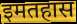
इमतहास